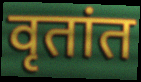
वृतांत